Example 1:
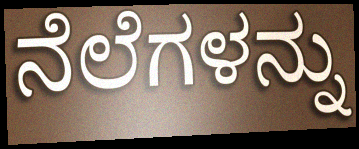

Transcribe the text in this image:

ನೆಲೆಗಳನ್ನು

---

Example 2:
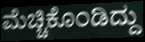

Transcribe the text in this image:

ಮೆಚ್ಚಿಕೊಂಡಿದ್ದು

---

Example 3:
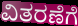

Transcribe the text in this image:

ವಿತರಣೆಗೆ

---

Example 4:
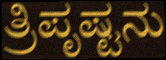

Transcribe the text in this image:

ತ್ರಿಪೃಷ್ಟನು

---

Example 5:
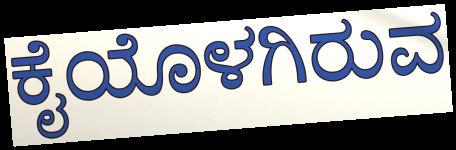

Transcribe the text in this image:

ಕೈಯೊಳಗಿರುವ